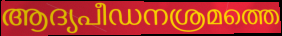
ആദ്യപീഡനശ്രമത്തെ